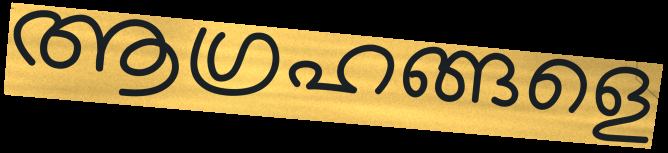
ആഗ്രഹങ്ങളെ